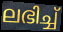
ലഭിച്ച്